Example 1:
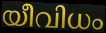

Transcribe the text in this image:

യീവിധം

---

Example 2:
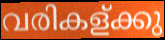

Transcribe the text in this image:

വരികള്ക്കു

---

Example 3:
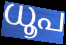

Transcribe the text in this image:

ധൂപ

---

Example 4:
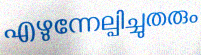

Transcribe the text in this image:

എഴുന്നേല്പിച്ചുതരും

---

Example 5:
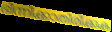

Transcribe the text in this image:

ഭിന്നിക്കാതിരിക്കുക